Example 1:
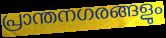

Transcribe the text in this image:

പ്രാന്തനഗരങ്ങളും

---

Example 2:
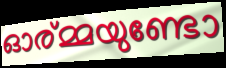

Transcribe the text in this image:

ഓര്മ്മയുണ്ടോ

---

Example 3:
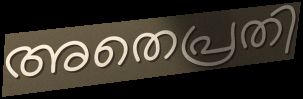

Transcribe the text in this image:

അതെപ്രതി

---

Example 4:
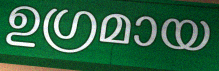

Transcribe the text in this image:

ഉഗ്രമായ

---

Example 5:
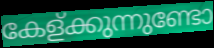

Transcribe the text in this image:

കേള്ക്കുന്നുണ്ടോ